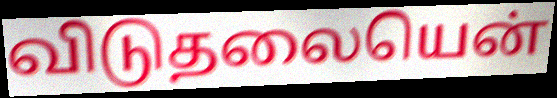
விடுதலையென்